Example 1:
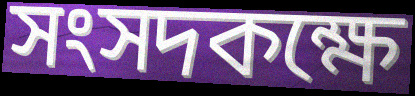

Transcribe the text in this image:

সংসদকক্ষে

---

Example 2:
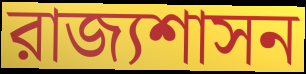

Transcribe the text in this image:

রাজ্যশাসন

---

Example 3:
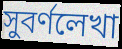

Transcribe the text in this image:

সুবর্ণলেখা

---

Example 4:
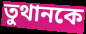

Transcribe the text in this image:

তুথানকে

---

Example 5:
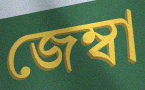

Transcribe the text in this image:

জেম্বা